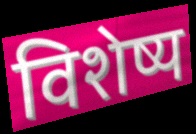
विशेष्य